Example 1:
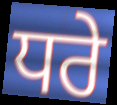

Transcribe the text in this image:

ਧਰੇ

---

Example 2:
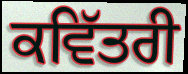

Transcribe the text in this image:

ਕਵਿੱਤਰੀ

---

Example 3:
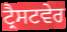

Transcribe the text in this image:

ਟ੍ਰੈਸਟਵੇਰ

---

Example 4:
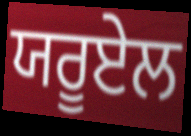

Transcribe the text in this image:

ਯਰੂਏਲ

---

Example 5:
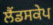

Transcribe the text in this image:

ਲੈਂਡਸਕੇਪ